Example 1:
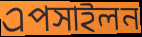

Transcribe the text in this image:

এপসাইলন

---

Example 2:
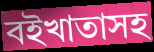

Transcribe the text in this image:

বইখাতাসহ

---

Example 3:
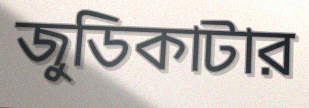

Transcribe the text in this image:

জুডিকাটার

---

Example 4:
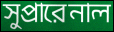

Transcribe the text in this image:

সুপ্রারেনাল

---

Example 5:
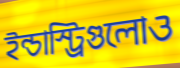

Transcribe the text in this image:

ইন্ডাস্ট্রিগুলোও